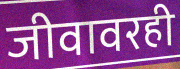
जीवावरही